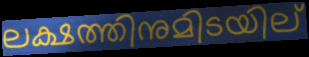
ലക്ഷത്തിനുമിടയില്